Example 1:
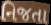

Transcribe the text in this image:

નિજતા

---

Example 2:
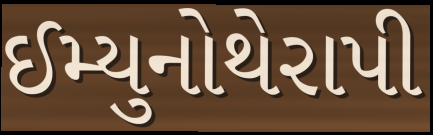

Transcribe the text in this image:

ઈમ્યુનોથેરાપી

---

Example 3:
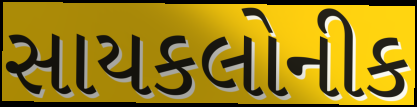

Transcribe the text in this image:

સાયકલોનીક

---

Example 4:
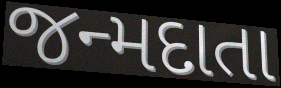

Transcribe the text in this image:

જન્મદાતા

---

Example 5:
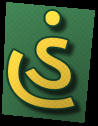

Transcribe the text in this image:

હં